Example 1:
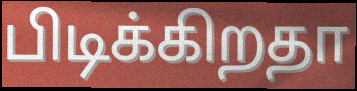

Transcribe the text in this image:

பிடிக்கிறதா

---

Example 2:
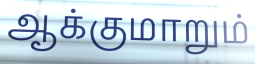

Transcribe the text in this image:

ஆக்குமாறும்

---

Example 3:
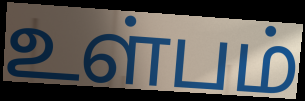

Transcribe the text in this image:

உள்பம்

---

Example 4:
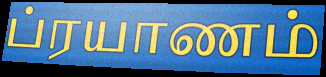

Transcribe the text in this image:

ப்ரயாணம்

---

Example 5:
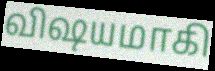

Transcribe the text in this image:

விஷயமாகி